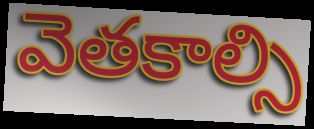
వెతకాల్సి